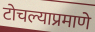
टोचल्याप्रमाणे